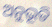
ଅନୁଭୂତି